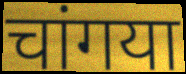
चांगया